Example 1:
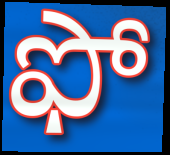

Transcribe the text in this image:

ఫో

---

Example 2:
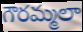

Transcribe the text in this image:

గౌరమ్మలా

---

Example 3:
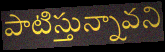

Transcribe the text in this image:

పాటిస్తున్నావని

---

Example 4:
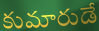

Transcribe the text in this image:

కుమారుడే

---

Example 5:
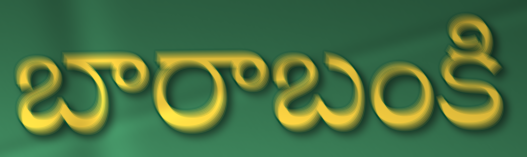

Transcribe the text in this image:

బారాబంకి